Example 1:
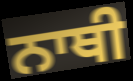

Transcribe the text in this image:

ਨਾਥੀ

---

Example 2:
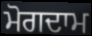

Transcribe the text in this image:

ਮੋਗਦਾਮ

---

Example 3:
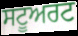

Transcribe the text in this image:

ਸਟੂਅਰਟ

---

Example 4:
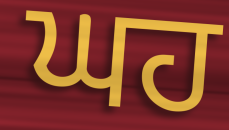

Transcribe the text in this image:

ਘਹ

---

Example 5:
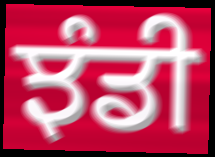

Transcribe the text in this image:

ਝੰਡੀ